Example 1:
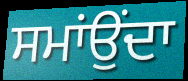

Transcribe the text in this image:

ਸਮਾਂਉਂਦਾ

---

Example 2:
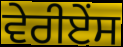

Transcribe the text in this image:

ਵੇਰੀਏਂਸ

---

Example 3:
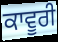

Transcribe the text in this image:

ਕਾਵੂਰੀ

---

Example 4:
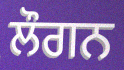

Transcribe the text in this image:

ਲੌਗਨ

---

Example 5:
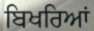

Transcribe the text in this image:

ਬਿਖਰਿਆਂ